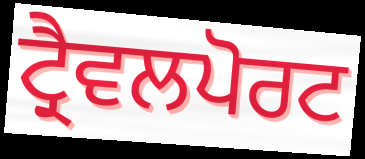
ਟ੍ਰੈਵਲਪੋਰਟ